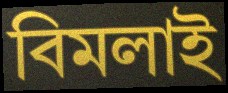
বিমলাই